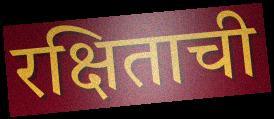
रक्षिताची